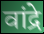
वांद्रे